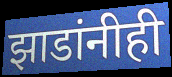
झाडांनीही